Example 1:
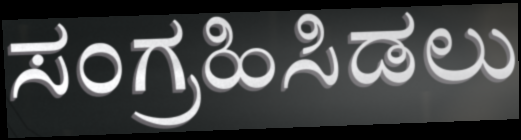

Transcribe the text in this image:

ಸಂಗ್ರಹಿಸಿಡಲು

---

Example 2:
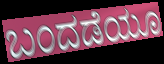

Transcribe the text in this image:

ಬಂದಡೆಯೂ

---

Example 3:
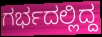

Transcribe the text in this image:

ಗರ್ಭದಲ್ಲಿದ್ದ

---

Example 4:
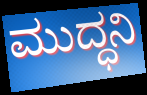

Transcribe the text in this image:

ಮುದ್ಧನಿ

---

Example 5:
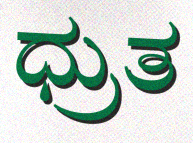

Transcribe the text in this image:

ಧ್ರುತ